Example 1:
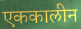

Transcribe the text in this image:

एककालीन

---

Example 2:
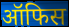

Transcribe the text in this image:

ऑफिस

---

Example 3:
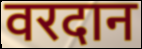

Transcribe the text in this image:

वरदान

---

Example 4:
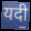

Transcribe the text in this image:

यदी॒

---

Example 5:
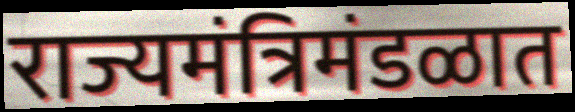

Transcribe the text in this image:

राज्यमंत्रिमंडळात